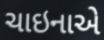
ચાઇનાએ